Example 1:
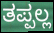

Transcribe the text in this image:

ತಪ್ಪಲ್ಲ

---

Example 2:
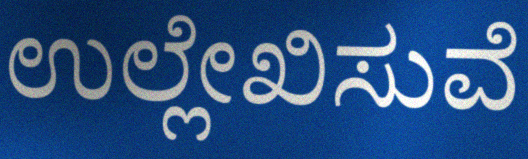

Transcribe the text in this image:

ಉಲ್ಲೇಖಿಸುವೆ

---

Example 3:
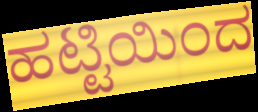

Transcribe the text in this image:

ಹಟ್ಟಿಯಿಂದ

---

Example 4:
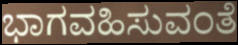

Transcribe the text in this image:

ಭಾಗವಹಿಸುವಂತೆ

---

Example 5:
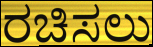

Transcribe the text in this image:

ರಚಿಸಲು